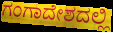
ಗಂಗಾದೇಶದಲ್ಲಿ